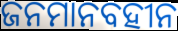
ଜନମାନବହୀନ